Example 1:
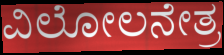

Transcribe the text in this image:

ವಿಲೋಲನೇತ್ರ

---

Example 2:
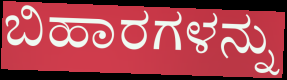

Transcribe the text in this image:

ಬಿಹಾರಗಳನ್ನು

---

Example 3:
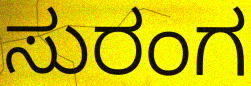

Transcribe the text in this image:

ಸುರಂಗ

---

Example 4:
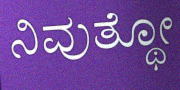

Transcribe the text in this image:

ನಿವುತ್ಥೋ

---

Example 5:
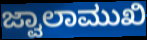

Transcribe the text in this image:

ಜ್ವಾಲಾಮುಖಿ